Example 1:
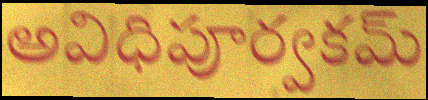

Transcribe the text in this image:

అవిధిపూర్వకమ్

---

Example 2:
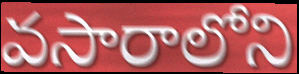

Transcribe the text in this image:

వసారాలోని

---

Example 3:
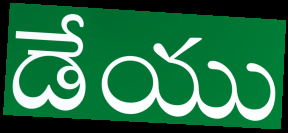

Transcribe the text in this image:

డేయు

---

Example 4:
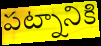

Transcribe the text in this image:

పట్నానికి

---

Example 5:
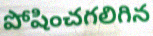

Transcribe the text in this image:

పోషించగలిగిన